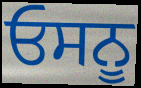
ਓਸਨੂ